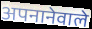
अपनानेवाले